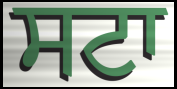
ਸਟਾ